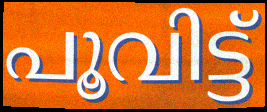
പൂവിട്ട്